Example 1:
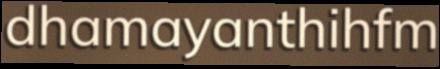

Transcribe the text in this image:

dhamayanthihfm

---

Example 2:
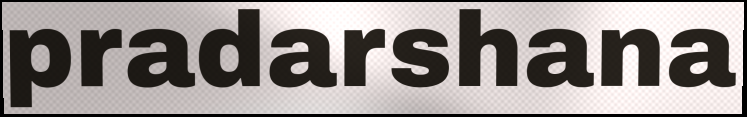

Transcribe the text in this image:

pradarshana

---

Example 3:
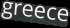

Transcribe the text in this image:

greece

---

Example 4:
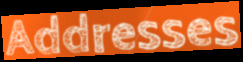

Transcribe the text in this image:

Addresses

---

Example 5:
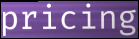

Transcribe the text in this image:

pricing